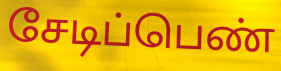
சேடிப்பெண்